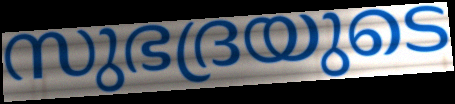
സുഭദ്രയുടെ